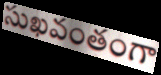
సుఖవంతంగా